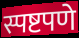
स्पष्टपणे